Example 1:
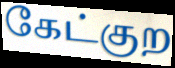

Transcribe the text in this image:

கேட்குற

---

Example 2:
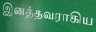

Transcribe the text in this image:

இனத்தவராகிய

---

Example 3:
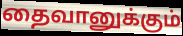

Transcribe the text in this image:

தைவானுக்கும்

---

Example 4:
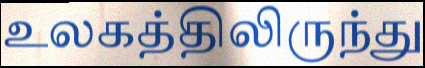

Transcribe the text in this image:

உலகத்திலிருந்து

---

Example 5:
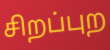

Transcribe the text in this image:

சிறப்புற